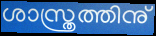
ശാസ്ത്രത്തിനു്